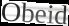
Obeid